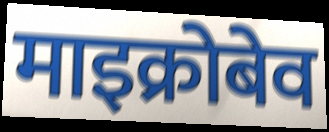
माइक्रोबेव